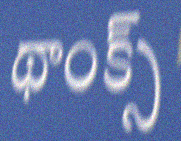
థాంక్స్